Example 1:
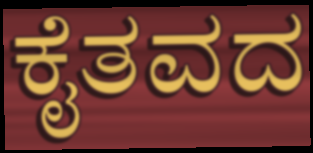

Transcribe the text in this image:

ಕೈತವದ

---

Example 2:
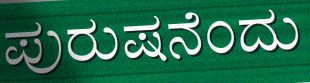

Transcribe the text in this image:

ಪುರುಷನೆಂದು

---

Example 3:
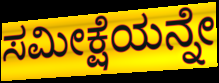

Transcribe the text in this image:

ಸಮೀಕ್ಷೆಯನ್ನೇ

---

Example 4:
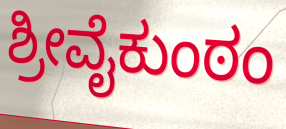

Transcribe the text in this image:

ಶ್ರೀವೈಕುಂಠಂ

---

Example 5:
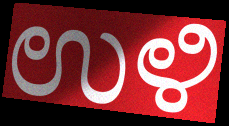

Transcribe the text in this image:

ಉಳಿ